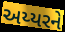
અય્યરને